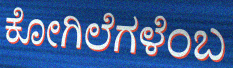
ಕೋಗಿಲೆಗಳೆಂಬ